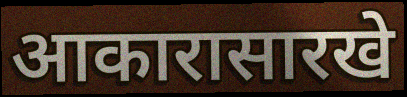
आकारासारखे